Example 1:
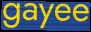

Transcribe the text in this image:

gayee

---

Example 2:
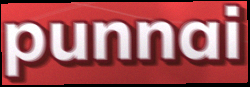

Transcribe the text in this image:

punnai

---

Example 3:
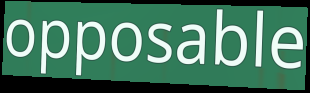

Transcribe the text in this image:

opposable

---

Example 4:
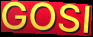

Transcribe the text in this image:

GOSI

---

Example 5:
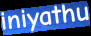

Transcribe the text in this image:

iniyathu